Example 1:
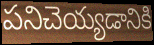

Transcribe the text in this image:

పనిచెయ్యడానికి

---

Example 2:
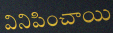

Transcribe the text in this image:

వినిపించాయి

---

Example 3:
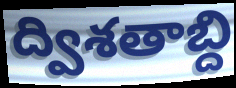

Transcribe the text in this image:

ద్విశతాబ్ది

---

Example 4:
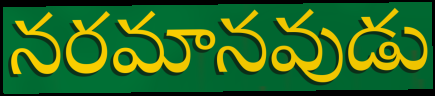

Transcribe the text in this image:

నరమానవుడు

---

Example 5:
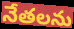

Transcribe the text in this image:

నేతలను